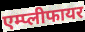
एम्प्लीफायर